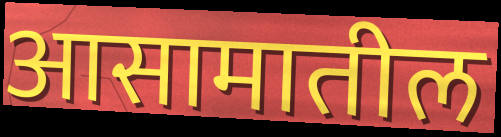
आसामातील